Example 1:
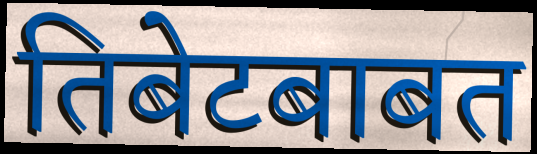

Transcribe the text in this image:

तिबेटबाबत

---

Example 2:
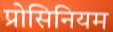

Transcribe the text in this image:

प्रोसिनियम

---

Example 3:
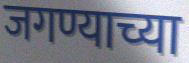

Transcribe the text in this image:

जगण्याच्या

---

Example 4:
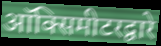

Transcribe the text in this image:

ऑक्सिमीटरद्वारे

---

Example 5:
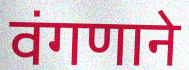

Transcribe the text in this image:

वंगणाने